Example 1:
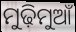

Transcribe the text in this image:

ମୁଢ଼ିମୁଆଁ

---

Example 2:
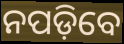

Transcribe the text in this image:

ନପଡ଼ିବେ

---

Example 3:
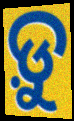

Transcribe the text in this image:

ଡ଼ୁ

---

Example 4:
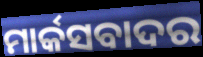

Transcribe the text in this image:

ମାର୍କସବାଦର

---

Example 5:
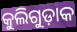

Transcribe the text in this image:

କୁଲିଗୁଡ଼ାକ